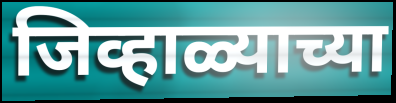
जिव्हाळ्याच्या